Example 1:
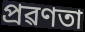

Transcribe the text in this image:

প্ৰৱণতা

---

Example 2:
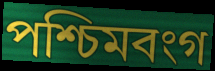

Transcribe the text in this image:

পশ্চিমবংগ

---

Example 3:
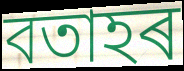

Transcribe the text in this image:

বতাহৰ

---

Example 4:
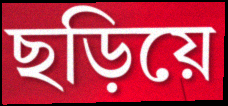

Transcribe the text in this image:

ছড়িয়ে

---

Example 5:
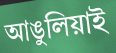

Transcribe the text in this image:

আঙুলিয়াই